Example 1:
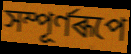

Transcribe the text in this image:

সম্পূৰ্ণৰূপে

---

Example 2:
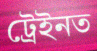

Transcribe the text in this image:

ট্ৰেইনত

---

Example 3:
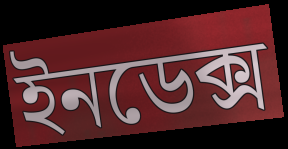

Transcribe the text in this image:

ইনডেক্স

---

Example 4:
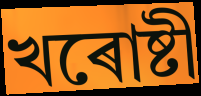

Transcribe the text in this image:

খৰোষ্টী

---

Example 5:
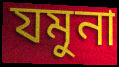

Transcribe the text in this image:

যমুনা